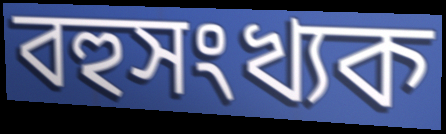
বহুসংখ্যক